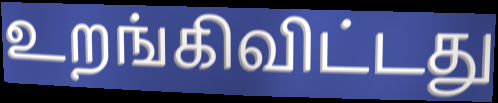
உறங்கிவிட்டது